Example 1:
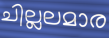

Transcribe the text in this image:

ചില്ലലമാര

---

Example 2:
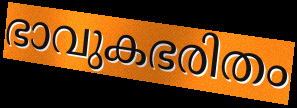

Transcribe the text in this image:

ഭാവുകഭരിതം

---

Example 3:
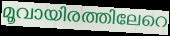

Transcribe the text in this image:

മൂവായിരത്തിലേറെ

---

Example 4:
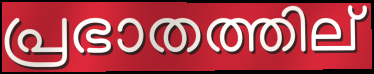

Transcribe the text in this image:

പ്രഭാതത്തില്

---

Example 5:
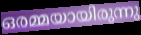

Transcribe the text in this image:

ഒരമ്മയായിരുന്നു